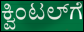
ಕ್ವಿಂಟಲ್‌ಗೆ